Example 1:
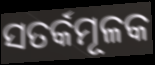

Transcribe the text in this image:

ସତର୍କମୂଳକ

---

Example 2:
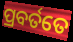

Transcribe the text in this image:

ପ୍ରବର୍ତତେ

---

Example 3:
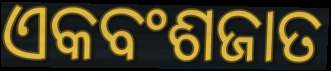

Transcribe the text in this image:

ଏକବଂଶଜାତ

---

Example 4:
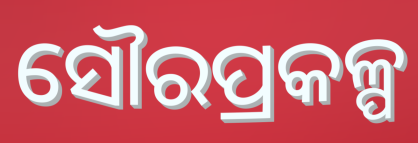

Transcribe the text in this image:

ସୌରପ୍ରକଳ୍ପ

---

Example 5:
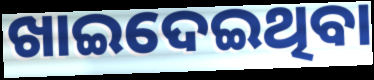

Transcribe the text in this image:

ଖାଇଦେଇଥିବା